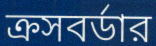
ক্রসবর্ডার